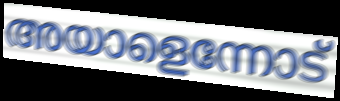
അയാളെന്നോട്